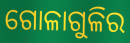
ଗୋଳାଗୁଳିର